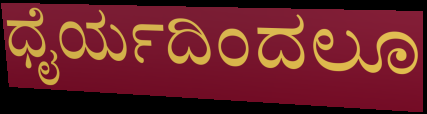
ಧೈರ್ಯದಿಂದಲೂ